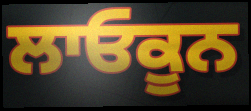
ਲਾਓਕੂਨ